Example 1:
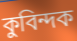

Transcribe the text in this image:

কুবিন্দক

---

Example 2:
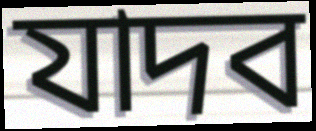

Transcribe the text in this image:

যাদব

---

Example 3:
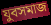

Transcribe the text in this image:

যুবসমাজ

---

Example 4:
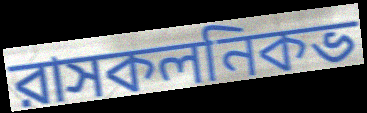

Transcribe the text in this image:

রাসকলনিকভ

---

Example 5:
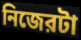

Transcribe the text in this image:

নিজেরটা